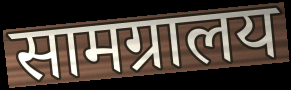
सामग्रालय